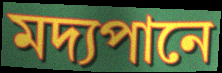
মদ্যপানে